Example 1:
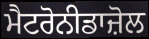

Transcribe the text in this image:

ਮੈਟਰੋਨੀਡਾਜ਼ੋਲ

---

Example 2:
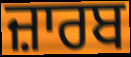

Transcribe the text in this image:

ਜ਼ਾਰਬ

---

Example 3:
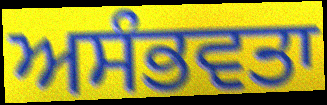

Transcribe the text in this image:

ਅਸੰਭਵਤਾ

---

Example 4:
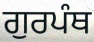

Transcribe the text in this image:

ਗੁਰਪੰਥ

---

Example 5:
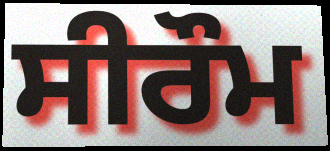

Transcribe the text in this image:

ਸੀਰੌਮ